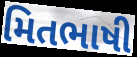
મિતભાષી